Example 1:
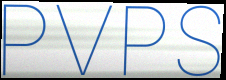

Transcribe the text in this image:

PVPS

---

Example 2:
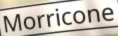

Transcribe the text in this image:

Morricone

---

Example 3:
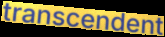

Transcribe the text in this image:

transcendent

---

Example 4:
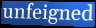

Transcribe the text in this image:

unfeigned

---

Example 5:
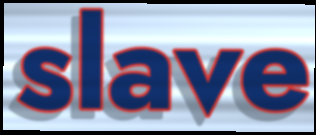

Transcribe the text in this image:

slave